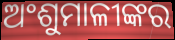
ଅଂଶୁମାଳୀଙ୍କର